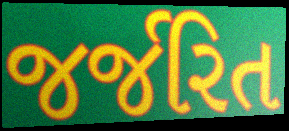
જર્જરિત